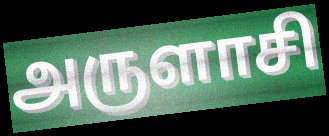
அருளாசி